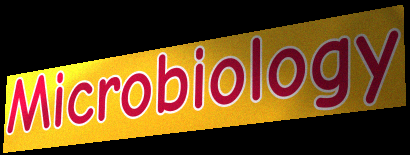
Microbiology